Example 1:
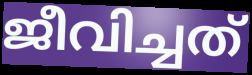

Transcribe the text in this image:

ജീവിച്ചത്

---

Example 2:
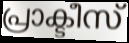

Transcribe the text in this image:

പ്രാക്ടീസ്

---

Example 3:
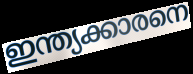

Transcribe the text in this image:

ഇന്ത്യക്കാരനെ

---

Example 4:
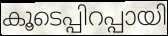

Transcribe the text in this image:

കൂടെപ്പിറപ്പായി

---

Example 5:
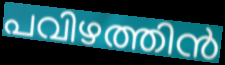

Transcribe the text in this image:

പവിഴത്തിൻ